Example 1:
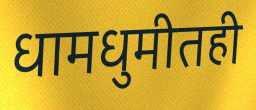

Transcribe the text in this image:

धामधुमीतही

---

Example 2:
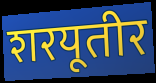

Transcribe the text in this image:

शरयूतीर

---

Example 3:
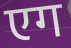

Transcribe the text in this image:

एग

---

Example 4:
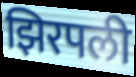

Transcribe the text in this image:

झिरपली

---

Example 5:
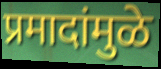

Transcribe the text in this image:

प्रमादांमुळे